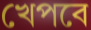
খেপবে